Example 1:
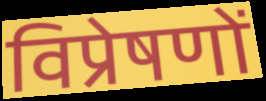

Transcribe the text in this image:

विप्रेषणों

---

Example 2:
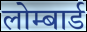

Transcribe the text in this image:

लोम्बार्ड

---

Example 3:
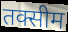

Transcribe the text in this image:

तक्सीम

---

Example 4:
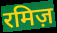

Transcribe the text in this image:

रमिज़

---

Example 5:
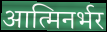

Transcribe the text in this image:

आत्मिनर्भर